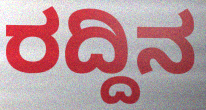
ರದ್ದಿನ